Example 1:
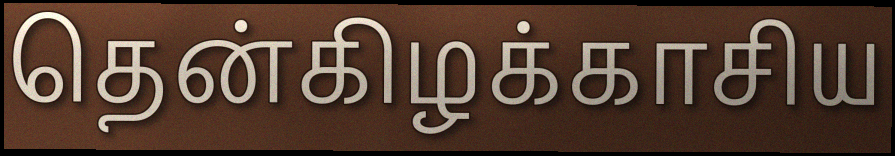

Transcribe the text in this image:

தென்கிழக்காசிய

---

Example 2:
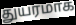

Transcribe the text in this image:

துயரமாக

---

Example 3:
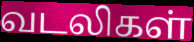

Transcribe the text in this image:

வடலிகள்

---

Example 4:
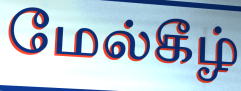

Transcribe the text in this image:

மேல்கீழ்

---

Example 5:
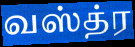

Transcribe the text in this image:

வஸ்த்ர